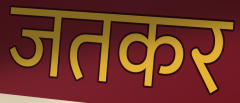
जतकर